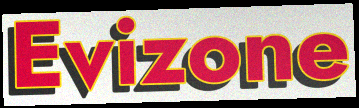
Evizone